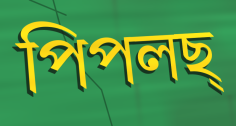
পিপলছ্